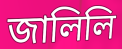
জালিলি